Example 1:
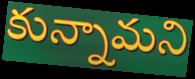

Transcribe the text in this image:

కున్నామని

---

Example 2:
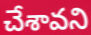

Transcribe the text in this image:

చేశావని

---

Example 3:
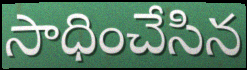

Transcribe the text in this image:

సాధించేసిన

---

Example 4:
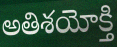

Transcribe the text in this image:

అతిశయోక్తి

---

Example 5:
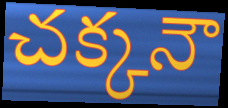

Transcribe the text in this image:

చక్కనౌ